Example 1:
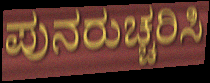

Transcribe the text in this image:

ಪುನರುಚ್ಚರಿಸಿ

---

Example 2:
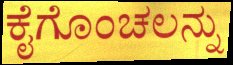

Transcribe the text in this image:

ಕೈಗೊಂಚಲನ್ನು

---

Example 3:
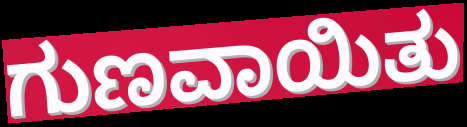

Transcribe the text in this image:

ಗುಣವಾಯಿತು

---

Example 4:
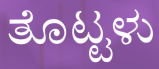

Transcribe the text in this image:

ತೊಟ್ಟಳು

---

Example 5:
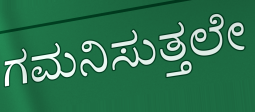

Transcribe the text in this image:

ಗಮನಿಸುತ್ತಲೇ